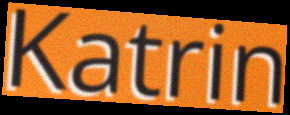
Katrin